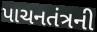
પાચનતંત્રની